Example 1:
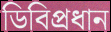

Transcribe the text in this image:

ডিবিপ্রধান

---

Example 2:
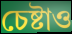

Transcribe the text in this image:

চেষ্টাও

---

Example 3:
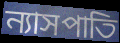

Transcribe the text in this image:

ন্যাসপাতি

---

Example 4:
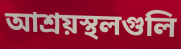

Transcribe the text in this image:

আশ্রয়স্থলগুলি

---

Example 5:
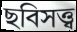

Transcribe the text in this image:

ছবিসত্ত্ব